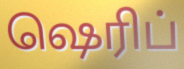
ஷெரிப்